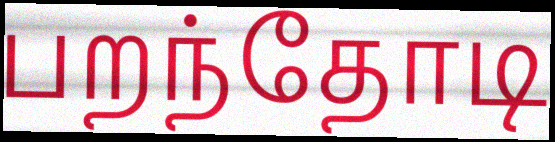
பறந்தோடி